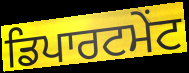
ਡਿਪਾਰਟਮੇਂਟ